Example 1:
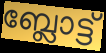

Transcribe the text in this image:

ബ്ലോട്ട്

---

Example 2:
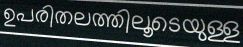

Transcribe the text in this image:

ഉപരിതലത്തിലൂടെയുള്ള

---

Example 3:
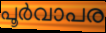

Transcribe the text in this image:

പൂർവാപര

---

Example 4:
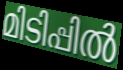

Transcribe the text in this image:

മിടിപ്പിൽ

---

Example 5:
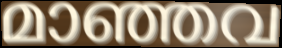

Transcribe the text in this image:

മാഞ്ഞവ